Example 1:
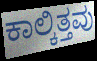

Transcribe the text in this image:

ಕಾಲ್ಕಿತ್ತವು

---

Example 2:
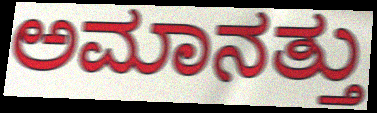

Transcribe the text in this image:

ಅಮಾನತ್ತು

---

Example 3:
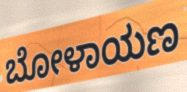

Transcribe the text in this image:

ಬೋಳಾಯಣ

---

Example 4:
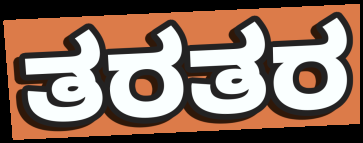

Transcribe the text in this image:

ತರತರ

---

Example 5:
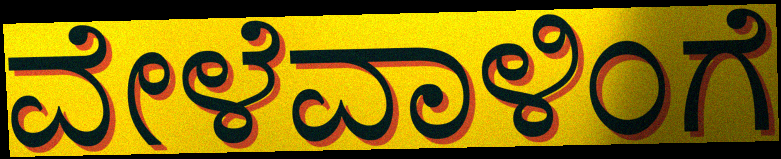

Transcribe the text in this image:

ವೇಳೆವಾಳಿಂಗೆ